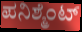
ಪನಿಶ್ಮೆಂಟ್